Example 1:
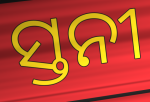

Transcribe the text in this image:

ସ୍ତନୀ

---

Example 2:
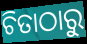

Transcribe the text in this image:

ଚିତାଠାରୁ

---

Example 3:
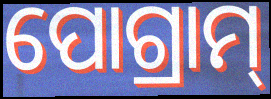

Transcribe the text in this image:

ପୋଗ୍ରାମ୍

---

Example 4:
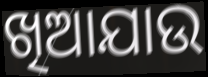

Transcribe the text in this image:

ଖିଆଯାଉ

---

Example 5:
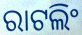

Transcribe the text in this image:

ରାଟଲିଂ